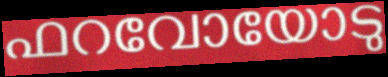
ഫറവോയോടു